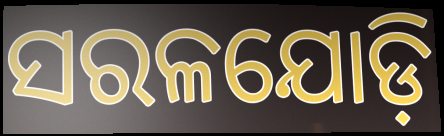
ସରଳଯୋଡ଼ି